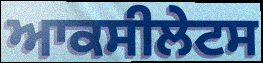
ਆਕਸੀਲੇਟਸ